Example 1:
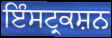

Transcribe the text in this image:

ਇੰਸਟ੍ਰਕਸ਼ਨ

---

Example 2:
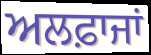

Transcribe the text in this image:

ਅਲਫ਼ਾਜਾਂ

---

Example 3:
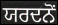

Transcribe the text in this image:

ਯਰਦਨੋਂ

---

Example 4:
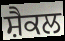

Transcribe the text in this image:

ਸ਼ੈਕਲ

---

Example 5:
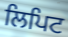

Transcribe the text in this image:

ਲਿਪਿਟ